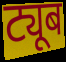
ट्यूब